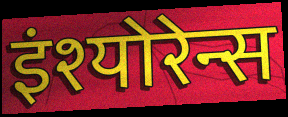
इंश्योरेन्स